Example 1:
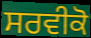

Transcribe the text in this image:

ਸਰਵੀਕੋ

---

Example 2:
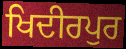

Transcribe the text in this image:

ਖਿਦੀਰਪੁਰ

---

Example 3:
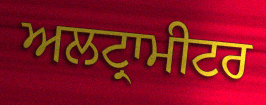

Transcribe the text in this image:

ਅਲਟ੍ਰਾਮੀਟਰ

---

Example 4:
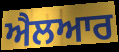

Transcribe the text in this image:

ਐਲਆਰ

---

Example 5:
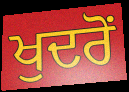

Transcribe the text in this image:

ਖੁਦਰੋਂ